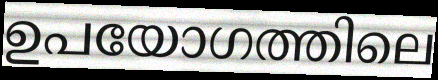
ഉപയോഗത്തിലെ